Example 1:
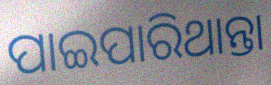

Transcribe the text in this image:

ପାଇପାରିଥାନ୍ତା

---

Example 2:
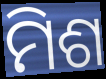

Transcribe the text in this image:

ମିଶ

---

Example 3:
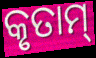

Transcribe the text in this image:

କୃତାମ୍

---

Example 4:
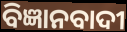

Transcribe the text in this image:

ବିଜ୍ଞାନବାଦୀ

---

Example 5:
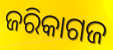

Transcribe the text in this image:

ଜରିକାଗଜ